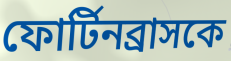
ফোর্টিনব্রাসকে